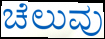
ಚೆಲುವು